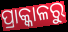
ପ୍ରାକ୍କାଳରୁ